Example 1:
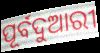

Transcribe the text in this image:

ପୂର୍ବଦୁଆରୀ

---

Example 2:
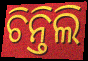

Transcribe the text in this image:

ଚିନ୍ତିଲି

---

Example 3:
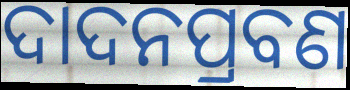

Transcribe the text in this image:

ଦାଦନପ୍ରବଣ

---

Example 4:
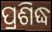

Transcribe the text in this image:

ପ୍ରଶିଦ୍ଧ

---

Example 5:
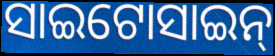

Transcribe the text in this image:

ସାଇଟୋସାଇନ୍